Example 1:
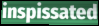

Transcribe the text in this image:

inspissated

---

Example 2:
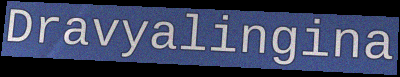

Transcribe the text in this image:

Dravyalingina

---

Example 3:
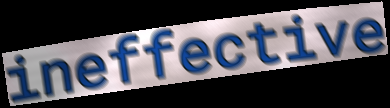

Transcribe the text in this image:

ineffective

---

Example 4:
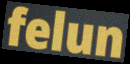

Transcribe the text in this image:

felun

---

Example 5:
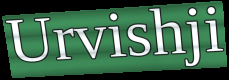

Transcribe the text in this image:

Urvishji